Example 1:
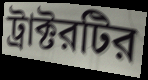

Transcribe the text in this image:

ট্রাক্টরটির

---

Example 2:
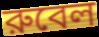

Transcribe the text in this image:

রুবেল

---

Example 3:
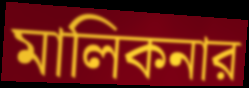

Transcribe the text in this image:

মালিকনার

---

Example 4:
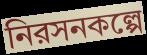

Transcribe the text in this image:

নিরসনকল্পে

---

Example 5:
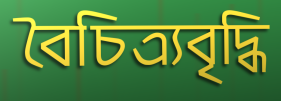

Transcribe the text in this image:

বৈচিত্র্যবৃদ্ধি